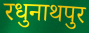
रधुनाथपुर